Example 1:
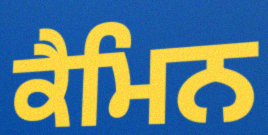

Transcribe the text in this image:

ਕੈਮਿਨ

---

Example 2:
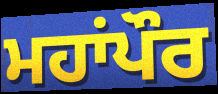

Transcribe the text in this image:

ਮਹਾਂਪੌਰ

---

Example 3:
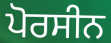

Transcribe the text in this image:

ਪੋਰਸੀਨ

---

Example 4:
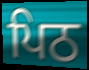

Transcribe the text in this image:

ਪਿਠ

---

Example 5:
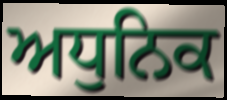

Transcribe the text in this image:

ਅਧੁਨਿਕ